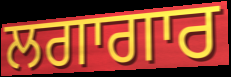
ਲਗਾਗਾਰ